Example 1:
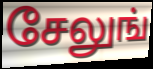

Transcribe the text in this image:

சேலுங்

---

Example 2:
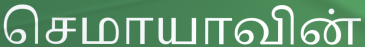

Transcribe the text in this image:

செமாயாவின்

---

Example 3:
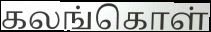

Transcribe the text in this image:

கலங்கொள்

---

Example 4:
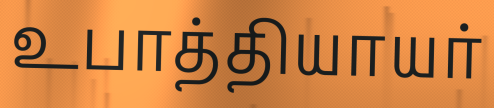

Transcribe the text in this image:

உபாத்தியாயர்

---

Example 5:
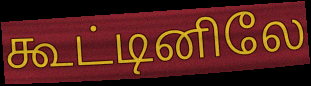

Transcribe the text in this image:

கூட்டினிலே